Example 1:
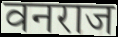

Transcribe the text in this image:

वनराज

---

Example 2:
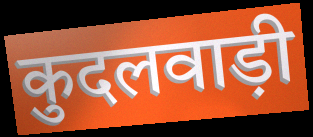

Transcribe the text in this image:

कुदलवाड़ी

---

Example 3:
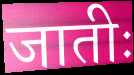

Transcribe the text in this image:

जातीः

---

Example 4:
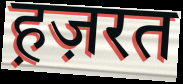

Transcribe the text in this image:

ह़ज़रत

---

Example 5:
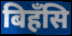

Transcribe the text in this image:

बिहँसि